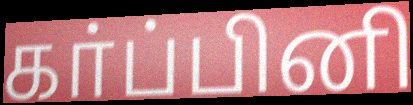
கர்ப்பினி